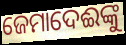
ଜେମାଦେଈଙ୍କୁ